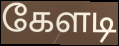
கேளடி